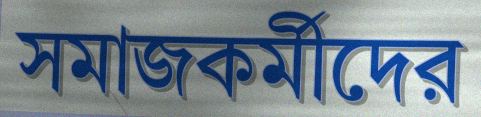
সমাজকর্মীদের